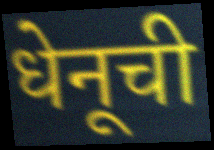
धेनूची